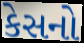
કેસનો